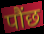
पौंछ